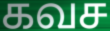
கவச